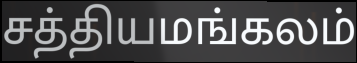
சத்தியமங்கலம்